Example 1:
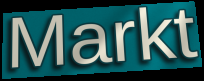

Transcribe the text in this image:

Markt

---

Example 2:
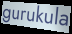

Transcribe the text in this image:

gurukula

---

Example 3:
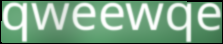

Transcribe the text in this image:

qweewqe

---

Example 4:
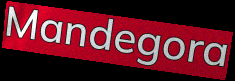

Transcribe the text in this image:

Mandegora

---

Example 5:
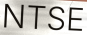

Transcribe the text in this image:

NTSE